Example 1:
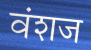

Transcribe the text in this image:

वंशज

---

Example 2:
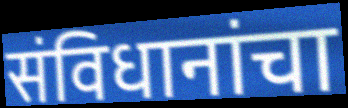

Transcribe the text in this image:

संविधानांचा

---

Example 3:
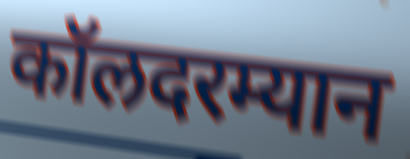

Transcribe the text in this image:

कॉलदरम्यान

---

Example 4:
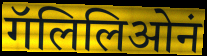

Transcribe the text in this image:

गॅलिलिओनं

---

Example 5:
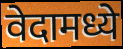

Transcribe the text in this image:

वेदामध्ये